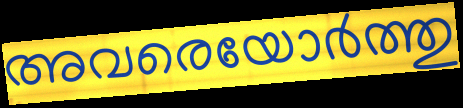
അവരെയോർത്തു